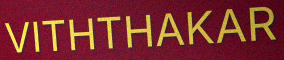
VITHTHAKAR